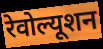
रेवोल्यूशन